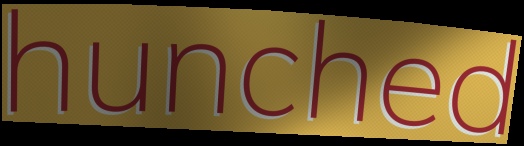
hunched